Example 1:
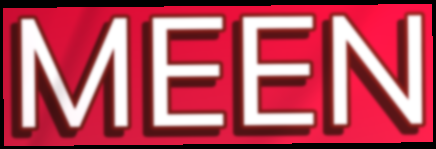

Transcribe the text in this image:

MEEN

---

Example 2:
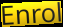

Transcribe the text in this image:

Enrol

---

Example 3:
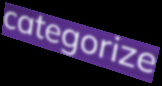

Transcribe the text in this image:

categorize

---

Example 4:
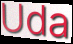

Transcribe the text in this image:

Uda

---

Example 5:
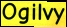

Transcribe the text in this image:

Ogilvy